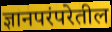
ज्ञानपरंपरेतील